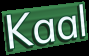
Kaal